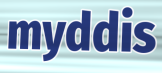
myddis